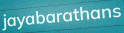
jayabarathans